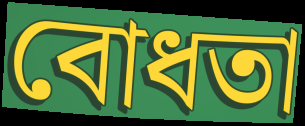
বোধতা